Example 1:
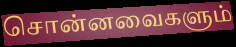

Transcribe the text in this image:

சொன்னவைகளும்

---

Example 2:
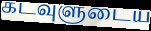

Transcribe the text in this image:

கடவுளுடைய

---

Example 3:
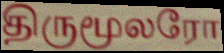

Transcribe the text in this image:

திருமூலரோ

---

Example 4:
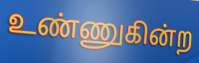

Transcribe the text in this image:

உண்ணுகின்ற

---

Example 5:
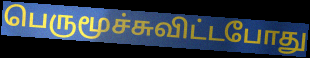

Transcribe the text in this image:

பெருமூச்சுவிட்டபோது